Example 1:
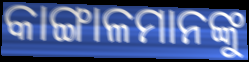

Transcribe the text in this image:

କାଙ୍ଗାଳମାନଙ୍କୁ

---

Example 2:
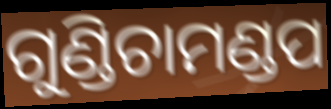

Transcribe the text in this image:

ଗୁଣ୍ଡିଚାମଣ୍ଡପ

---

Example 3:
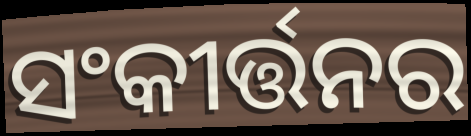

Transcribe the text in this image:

ସଂକୀର୍ତ୍ତନର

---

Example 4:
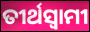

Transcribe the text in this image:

ତୀର୍ଥସ୍ୱାମୀ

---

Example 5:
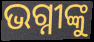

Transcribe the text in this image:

ଭଗ୍ନୀଙ୍କୁ